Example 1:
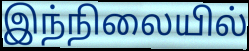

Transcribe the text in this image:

இந்நிலையில்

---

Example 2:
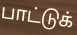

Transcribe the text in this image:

பாட்டுக்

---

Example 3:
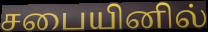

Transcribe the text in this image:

சபையினில்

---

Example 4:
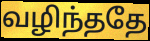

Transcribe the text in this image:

வழிந்ததே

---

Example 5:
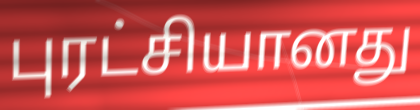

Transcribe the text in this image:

புரட்சியானது